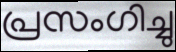
പ്രസംഗിച്ചു